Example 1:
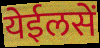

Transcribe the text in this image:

येईलसें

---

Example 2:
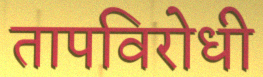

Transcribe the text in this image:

तापविरोधी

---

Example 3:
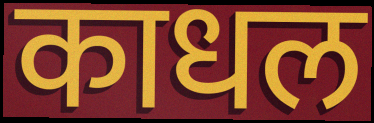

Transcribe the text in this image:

काधल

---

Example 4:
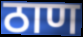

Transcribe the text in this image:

ठाण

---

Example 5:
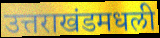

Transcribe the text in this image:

उत्तराखंडमधली